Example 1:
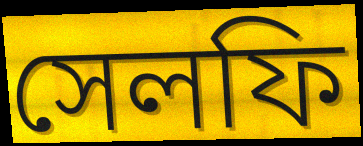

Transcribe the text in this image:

সেলফি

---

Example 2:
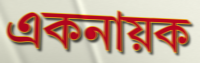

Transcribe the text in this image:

একনায়ক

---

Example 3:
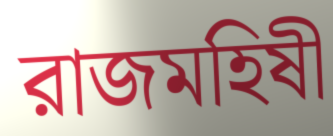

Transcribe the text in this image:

রাজমহিষী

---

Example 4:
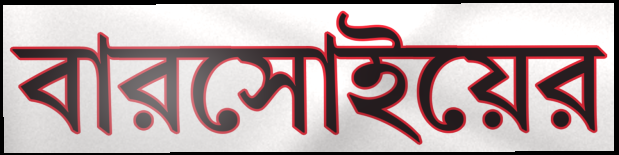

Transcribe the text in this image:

বারসোইয়ের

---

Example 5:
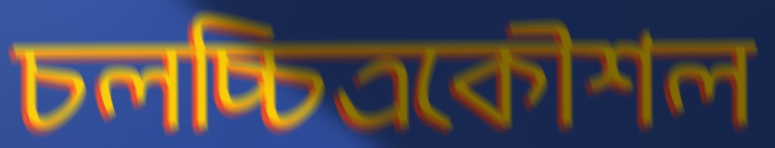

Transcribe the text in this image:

চলচ্চিত্রকৌশল